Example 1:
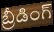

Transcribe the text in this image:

బ్రీడింగ్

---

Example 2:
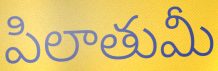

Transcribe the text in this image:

పిలాతుమీ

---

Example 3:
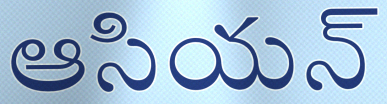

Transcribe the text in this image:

ఆసియన్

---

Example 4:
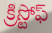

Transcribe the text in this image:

క్రిస్టోఫ్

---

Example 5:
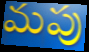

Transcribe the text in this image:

మపు